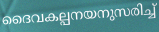
ദൈവകല്പനയനുസരിച്ച്